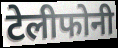
टेलीफोनी